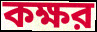
কক্ষর